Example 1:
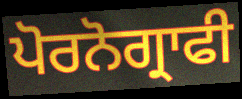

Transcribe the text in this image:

ਪੋਰਨੋਗ੍ਰਾਫੀ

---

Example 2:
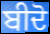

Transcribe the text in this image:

ਬੀਦੋ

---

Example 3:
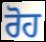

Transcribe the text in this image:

ਰੋਹ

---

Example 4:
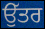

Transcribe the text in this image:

ਉੱਤਰ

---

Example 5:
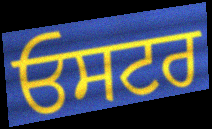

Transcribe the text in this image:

ਓਸਟਰ